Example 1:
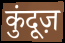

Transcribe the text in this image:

कुंदूज़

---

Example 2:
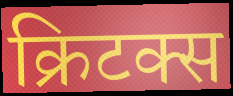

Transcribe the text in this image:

क्रिटक्स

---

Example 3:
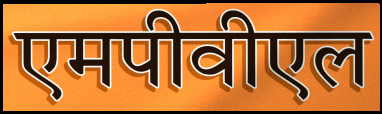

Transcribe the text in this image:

एमपीवीएल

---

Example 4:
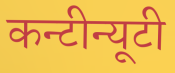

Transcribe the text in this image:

कन्टीन्यूटी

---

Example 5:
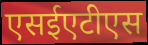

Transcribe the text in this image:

एसईएटीएस